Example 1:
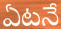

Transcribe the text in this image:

ఏటనే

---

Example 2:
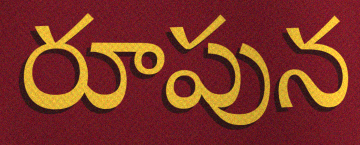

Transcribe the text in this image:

రూపున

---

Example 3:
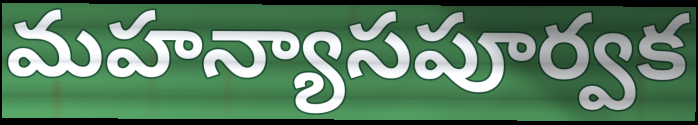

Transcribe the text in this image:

మహన్యాసపూర్వక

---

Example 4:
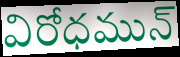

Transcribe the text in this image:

విరోధమున్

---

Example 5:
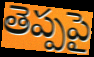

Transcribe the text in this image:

తెప్పపై